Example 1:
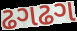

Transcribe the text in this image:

ઢગઢગ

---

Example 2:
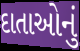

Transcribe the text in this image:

દાતાઓનું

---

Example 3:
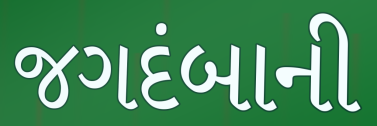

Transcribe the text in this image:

જગદંબાની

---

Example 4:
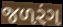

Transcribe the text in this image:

જળરંગ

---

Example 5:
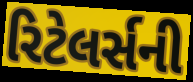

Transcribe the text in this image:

રિટેલર્સની